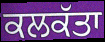
ਕਲਕੱਤਾ